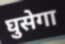
घुसेगा